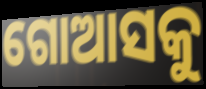
ଗୋଆସକୁ